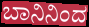
ಬಾನಿನಿಂದ